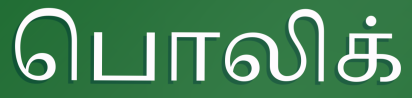
பொலிக்